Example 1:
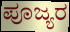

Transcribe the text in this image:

ಪೂಜ್ಯರ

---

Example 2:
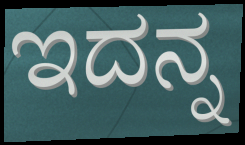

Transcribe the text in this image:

ಇದನ್ನ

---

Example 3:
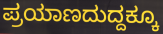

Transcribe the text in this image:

ಪ್ರಯಾಣದುದ್ದಕ್ಕೂ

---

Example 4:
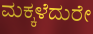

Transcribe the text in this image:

ಮಕ್ಕಳೆದುರೇ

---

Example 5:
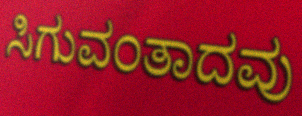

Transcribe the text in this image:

ಸಿಗುವಂತಾದವು